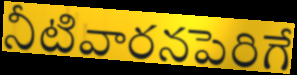
నీటివారనపెరిగే